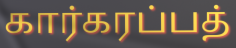
கார்கரப்பத்